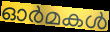
ഓർമകൾ